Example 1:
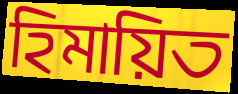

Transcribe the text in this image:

হিমায়িত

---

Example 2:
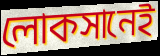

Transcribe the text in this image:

লোকসানেই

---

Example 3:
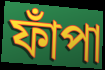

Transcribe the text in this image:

ফাঁপা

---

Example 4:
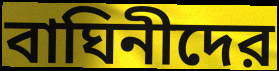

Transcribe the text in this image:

বাঘিনীদের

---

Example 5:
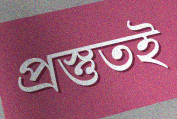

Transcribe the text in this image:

প্রস্তুতই